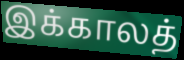
இக்காலத்